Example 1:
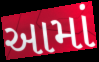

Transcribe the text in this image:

આમાં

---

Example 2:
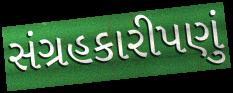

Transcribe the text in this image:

સંગ્રહકારીપણું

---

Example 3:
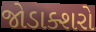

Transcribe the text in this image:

જોડાક્શરો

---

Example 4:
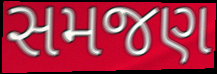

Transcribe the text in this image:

સમજણ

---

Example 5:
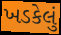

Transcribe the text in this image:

ખડકેલું